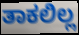
ತಾಕಲಿಲ್ಲ